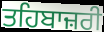
ਤਹਿਬਾਜ਼ਰੀ